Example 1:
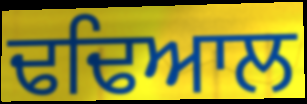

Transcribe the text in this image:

ਢਢਿਆਲ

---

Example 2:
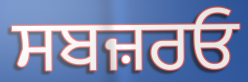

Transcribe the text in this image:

ਸਬਜ਼ਰਓ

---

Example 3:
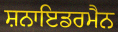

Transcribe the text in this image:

ਸ਼ਨਾਇਡਰਮੈਨ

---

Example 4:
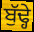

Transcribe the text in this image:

ਬੁੱਢ੍ਹੇ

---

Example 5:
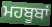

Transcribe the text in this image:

ਮਹਬੂਬਾਂ